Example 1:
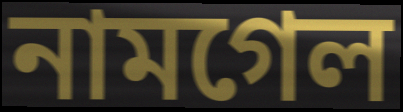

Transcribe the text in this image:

নামগেল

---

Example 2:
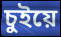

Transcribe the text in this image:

চুইয়ে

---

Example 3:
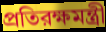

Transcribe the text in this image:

প্রতিরক্ষমন্ত্রী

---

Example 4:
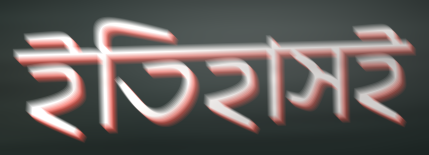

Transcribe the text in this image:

ইতিহাসই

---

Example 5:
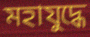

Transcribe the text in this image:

মহাযুদ্ধে